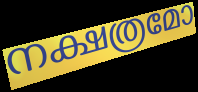
നക്ഷത്രമോ